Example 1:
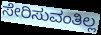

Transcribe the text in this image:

ಸೇರಿಸುವಂತಿಲ್ಲ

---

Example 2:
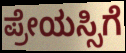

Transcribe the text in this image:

ಪ್ರೇಯಸ್ಸಿಗೆ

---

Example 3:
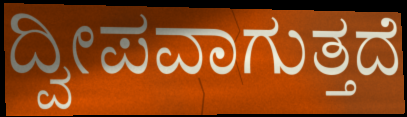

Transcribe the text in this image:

ದ್ವೀಪವಾಗುತ್ತದೆ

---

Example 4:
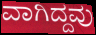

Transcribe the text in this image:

ವಾಗಿದ್ದವು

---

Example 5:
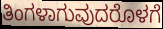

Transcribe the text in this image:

ತಿಂಗಳಾಗುವುದರೊಳಗೆ